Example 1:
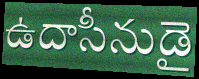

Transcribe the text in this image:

ఉదాసీనుడై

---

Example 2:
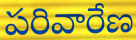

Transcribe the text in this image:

పరివారేణ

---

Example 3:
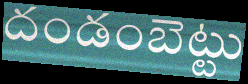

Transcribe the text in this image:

దండంబెట్టు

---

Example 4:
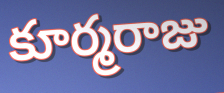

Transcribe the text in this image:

కూర్మరాజు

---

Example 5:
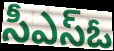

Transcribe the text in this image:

సీఎస్ఓ